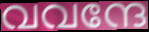
വവന്ദേ